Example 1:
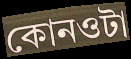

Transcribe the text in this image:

কোনওটা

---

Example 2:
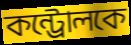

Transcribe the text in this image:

কন্ট্রোলকে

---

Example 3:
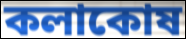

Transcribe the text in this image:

কলাকোষ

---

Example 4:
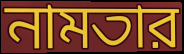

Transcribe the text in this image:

নামতার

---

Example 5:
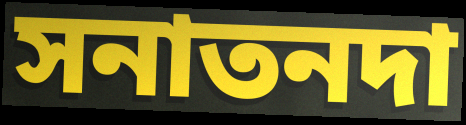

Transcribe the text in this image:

সনাতনদা